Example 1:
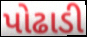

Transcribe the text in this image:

પોઢાડી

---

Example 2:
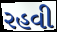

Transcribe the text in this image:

રહવી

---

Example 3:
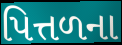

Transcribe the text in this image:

પિત્તળના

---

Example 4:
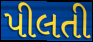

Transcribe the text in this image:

પીલતી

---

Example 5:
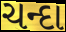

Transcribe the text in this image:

ચન્દા